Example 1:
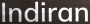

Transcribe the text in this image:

Indiran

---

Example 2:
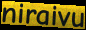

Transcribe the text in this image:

niraivu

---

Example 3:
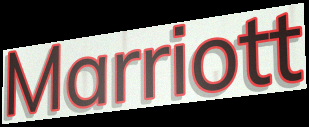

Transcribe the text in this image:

Marriott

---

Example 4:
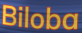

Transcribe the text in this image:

Biloba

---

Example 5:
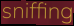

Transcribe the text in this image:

sniffing